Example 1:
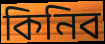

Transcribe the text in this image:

কিনিব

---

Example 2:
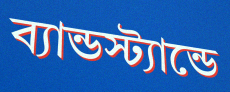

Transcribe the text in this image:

ব্যান্ডস্ট্যান্ডে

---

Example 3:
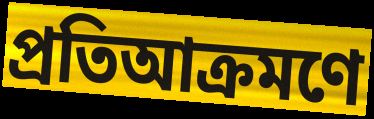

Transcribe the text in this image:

প্রতিআক্রমণে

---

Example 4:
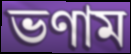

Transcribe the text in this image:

ভণাম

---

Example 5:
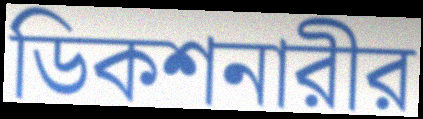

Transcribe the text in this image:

ডিকশনারীর